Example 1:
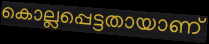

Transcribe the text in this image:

കൊല്ലപ്പെട്ടതായാണ്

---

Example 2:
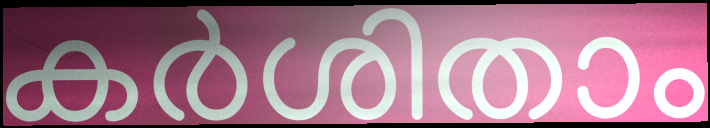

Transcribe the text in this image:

കർശിതാം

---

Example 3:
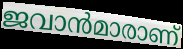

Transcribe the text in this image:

ജവാൻമാരാണ്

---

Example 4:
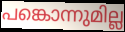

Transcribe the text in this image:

പങ്കൊന്നുമില്ല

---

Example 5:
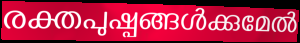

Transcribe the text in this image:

രക്തപുഷ്പങ്ങൾക്കുമേൽ